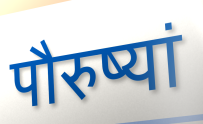
पौरुष्यां